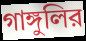
গাঙ্গুলির